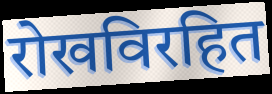
रोखविरहित